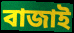
বাজাই